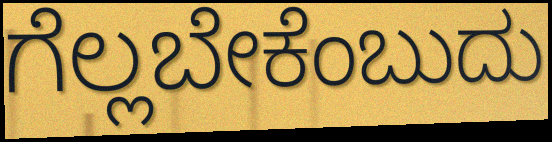
ಗೆಲ್ಲಬೇಕೆಂಬುದು